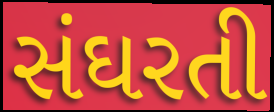
સંઘરતી